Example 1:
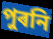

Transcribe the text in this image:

পুৰনি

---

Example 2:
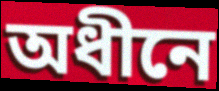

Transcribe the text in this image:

অধীনে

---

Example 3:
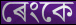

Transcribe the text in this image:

ৰেংকে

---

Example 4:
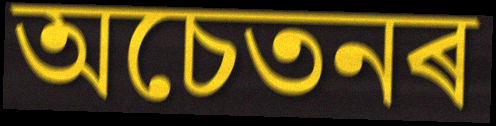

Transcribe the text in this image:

অচেতনৰ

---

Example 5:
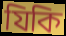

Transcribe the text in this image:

যিকি